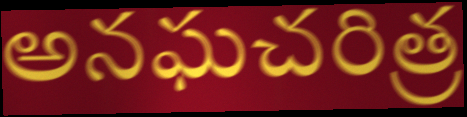
అనఘచరిత్ర